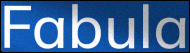
Fabula